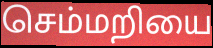
செம்மறியை